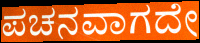
ಪಚನವಾಗದೇ